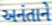
અનંતાને